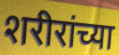
शरीरांच्या